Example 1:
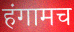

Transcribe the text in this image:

हंगामच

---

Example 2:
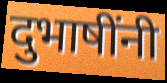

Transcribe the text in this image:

दुभाषींनी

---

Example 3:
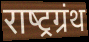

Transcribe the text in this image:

राष्ट्रग्रंथ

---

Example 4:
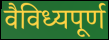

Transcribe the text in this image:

वैविध्यपूर्ण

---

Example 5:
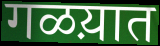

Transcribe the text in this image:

गळय़ात